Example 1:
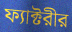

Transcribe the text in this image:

ফ্যাক্টরীর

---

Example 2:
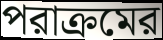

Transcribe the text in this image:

পরাক্রমের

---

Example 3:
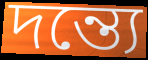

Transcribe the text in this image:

দন্ত্যে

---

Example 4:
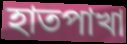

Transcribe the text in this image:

হাতপাখা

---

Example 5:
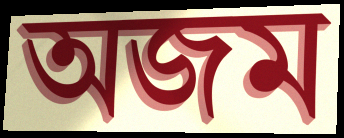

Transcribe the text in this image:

অজম